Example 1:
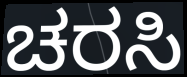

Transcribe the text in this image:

ಚರಸಿ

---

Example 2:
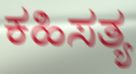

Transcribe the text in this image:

ಕಹಿಸತ್ಯ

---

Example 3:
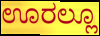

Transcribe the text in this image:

ಊರಲ್ಲೂ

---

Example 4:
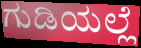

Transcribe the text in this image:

ಗುಡಿಯಲ್ಲೆ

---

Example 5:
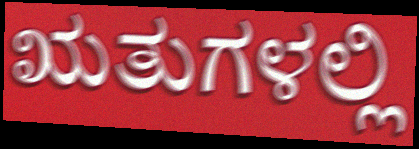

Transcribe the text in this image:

ಋತುಗಳಲ್ಲಿ